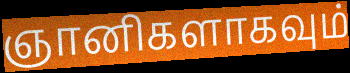
ஞானிகளாகவும்